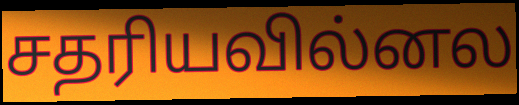
சதரியவில்னல